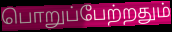
பொறுப்பேற்றதும்